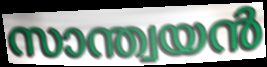
സാന്ത്വയൻ